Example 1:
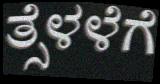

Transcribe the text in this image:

ತ್ಸೆಳಳೆಗೆ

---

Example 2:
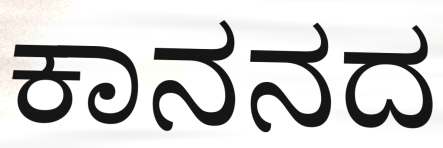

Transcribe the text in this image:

ಕಾನನದ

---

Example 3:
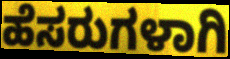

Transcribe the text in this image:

ಹೆಸರುಗಳಾಗಿ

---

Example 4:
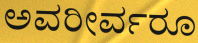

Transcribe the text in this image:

ಅವರೀರ್ವರೂ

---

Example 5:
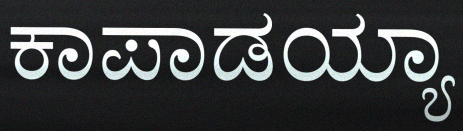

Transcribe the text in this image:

ಕಾಪಾಡಯ್ಯಾ